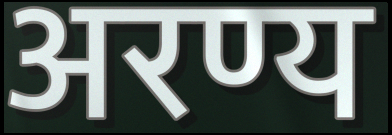
अरण्य